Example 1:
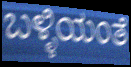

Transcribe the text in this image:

ಬಳ್ಳಿಯಂತೆ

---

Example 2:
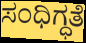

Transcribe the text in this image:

ಸಂಧಿಗ್ಧತೆ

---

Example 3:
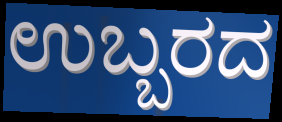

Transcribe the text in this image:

ಉಬ್ಬರದ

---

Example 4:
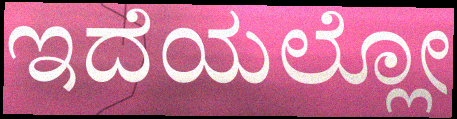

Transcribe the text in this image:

ಇದೆಯಲ್ಲೋ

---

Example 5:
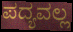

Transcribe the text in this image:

ಪದ್ಯವಲ್ಲ